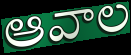
ఆవాల